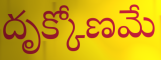
దృక్కోణమే